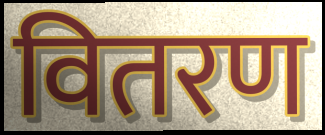
वितरण